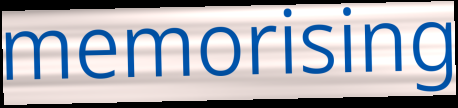
memorising